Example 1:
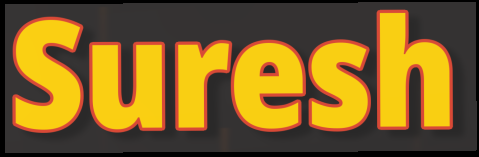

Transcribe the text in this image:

Suresh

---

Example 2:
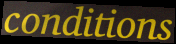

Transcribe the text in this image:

conditions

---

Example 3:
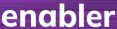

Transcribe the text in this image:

enabler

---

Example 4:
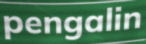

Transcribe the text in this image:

pengalin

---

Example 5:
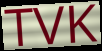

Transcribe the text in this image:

TVK